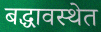
बद्धावस्थेत